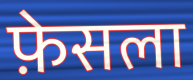
फ़ेसला